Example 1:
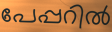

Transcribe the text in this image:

പേപ്പറിൽ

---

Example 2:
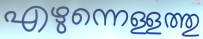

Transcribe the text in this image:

എഴുന്നെള്ളത്തു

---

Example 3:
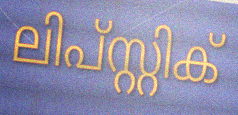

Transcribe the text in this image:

ലിപ്സ്റ്റിക്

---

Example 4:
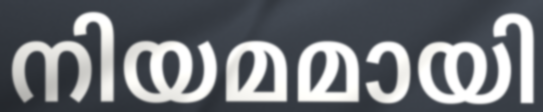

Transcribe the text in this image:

നിയമമായി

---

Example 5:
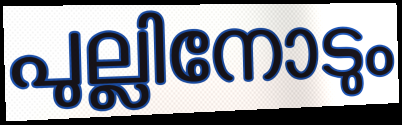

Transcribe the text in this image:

പുല്ലിനോടും